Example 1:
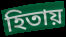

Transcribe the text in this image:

হিতায়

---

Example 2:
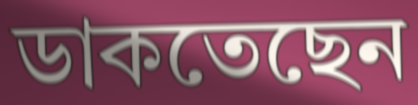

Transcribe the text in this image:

ডাকতেছেন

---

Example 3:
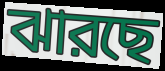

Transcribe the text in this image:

ঝারছে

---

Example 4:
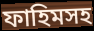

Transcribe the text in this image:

ফাহিমসহ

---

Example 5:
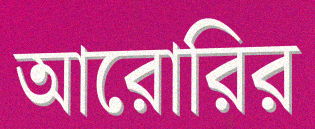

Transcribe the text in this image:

আরোরির